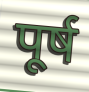
पूर्ष